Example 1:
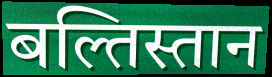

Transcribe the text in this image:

बल्तिस्तान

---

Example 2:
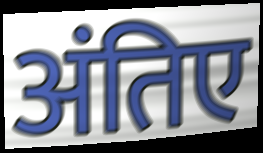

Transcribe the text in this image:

अंतिए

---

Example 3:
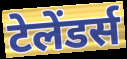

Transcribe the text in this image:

टेलेंडर्स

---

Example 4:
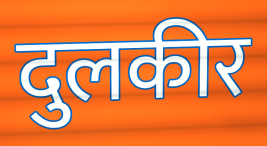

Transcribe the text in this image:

दुलकीर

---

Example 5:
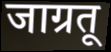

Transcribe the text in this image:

जाग्रतू